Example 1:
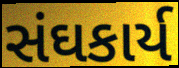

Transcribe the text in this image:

સંઘકાર્ય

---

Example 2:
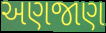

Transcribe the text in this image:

અણજાણ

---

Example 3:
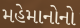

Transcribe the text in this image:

મહેમાનોનો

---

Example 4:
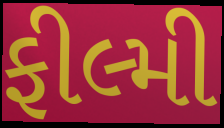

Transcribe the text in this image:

ફીલ્મી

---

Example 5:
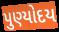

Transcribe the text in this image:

પુણ્યોદય